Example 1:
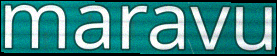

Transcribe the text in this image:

maravu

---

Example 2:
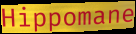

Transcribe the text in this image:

Hippomane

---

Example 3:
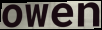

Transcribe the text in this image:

owen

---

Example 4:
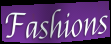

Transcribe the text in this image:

Fashions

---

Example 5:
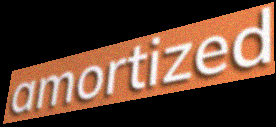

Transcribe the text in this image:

amortized